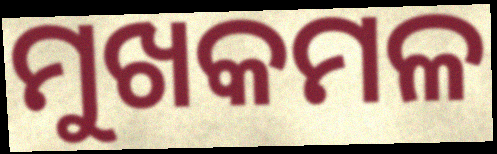
ମୁଖକମଳ